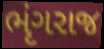
ભૃંગરાજ